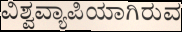
ವಿಶ್ವವ್ಯಾಪಿಯಾಗಿರುವ